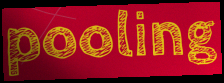
pooling